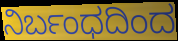
ನಿರ್ಬಂಧದಿಂದ